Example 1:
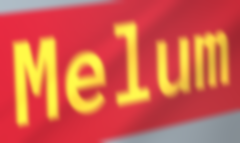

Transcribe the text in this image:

Melum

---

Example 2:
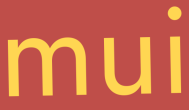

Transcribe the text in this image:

mui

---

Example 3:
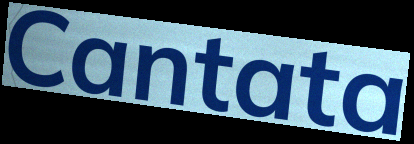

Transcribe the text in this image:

Cantata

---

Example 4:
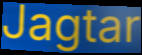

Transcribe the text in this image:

Jagtar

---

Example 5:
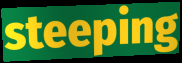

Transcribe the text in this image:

steeping